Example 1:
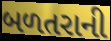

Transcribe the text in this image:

બળતરાની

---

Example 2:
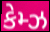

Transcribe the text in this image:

કેમ્ઝ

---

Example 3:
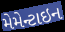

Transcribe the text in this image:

મેમેન્ટાઇન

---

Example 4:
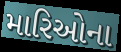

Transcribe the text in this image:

મારિઓના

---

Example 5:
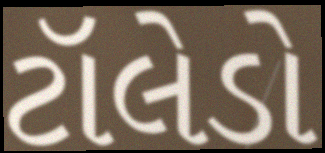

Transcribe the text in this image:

ટૉલેડો